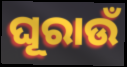
ଘୂରାଉଁ